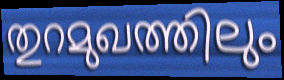
തുറമുഖത്തിലും